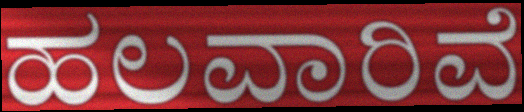
ಹಲವಾರಿವೆ